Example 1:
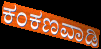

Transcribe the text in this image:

ಕಂಕಣವಾಡಿ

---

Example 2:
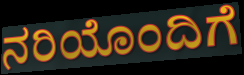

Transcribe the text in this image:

ನರಿಯೊಂದಿಗೆ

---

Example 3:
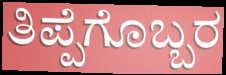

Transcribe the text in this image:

ತಿಪ್ಪೆಗೊಬ್ಬರ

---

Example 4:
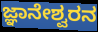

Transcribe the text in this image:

ಜ್ಞಾನೇಶ್ವರನ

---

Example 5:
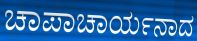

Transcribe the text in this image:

ಚಾಪಾಚಾರ್ಯನಾದ